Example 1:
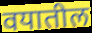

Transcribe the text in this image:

वयातील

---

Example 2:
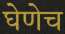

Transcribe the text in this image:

घेणेच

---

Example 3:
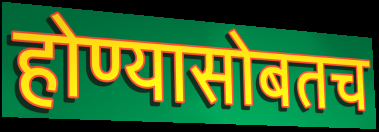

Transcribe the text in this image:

होण्यासोबतच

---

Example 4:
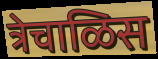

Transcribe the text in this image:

त्रेचाळिस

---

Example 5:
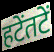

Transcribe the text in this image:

हटेंतटें